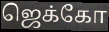
ஜெக்கோ